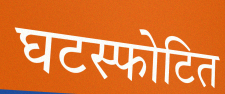
घटस्फोटित